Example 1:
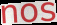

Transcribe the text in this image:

nos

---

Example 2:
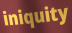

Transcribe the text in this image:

iniquity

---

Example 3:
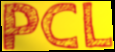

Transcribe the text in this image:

PCL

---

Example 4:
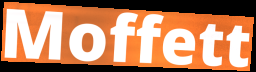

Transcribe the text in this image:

Moffett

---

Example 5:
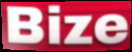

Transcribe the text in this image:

Bize